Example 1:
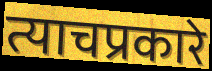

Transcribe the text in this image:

त्याचप्रकारे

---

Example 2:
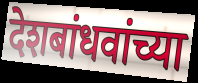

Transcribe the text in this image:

देशबांधवांच्या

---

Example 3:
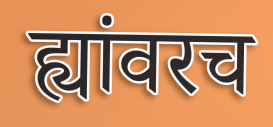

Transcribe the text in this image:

ह्यांवरच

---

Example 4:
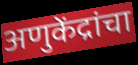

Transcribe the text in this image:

अणुकेंद्रांचा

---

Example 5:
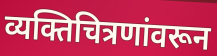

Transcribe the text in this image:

व्यक्तिचित्रणांवरून